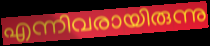
എന്നിവരായിരുന്നു